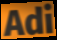
Adi